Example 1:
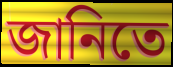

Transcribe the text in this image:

জানিতে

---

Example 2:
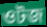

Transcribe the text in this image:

ওটজ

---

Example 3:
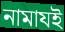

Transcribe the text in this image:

নামাযই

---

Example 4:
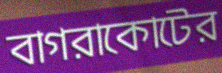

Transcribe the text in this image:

বাগরাকোটের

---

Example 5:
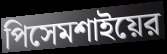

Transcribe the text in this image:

পিসেমশাইয়ের